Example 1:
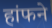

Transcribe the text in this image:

हांफने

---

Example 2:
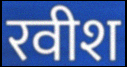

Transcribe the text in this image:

रवीश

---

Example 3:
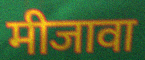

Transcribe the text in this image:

मीजावा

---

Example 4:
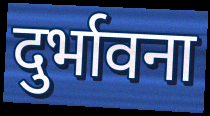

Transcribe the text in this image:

दुर्भावना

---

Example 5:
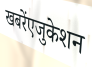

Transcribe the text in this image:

खबरेंएजुकेशन